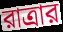
রাত্রার